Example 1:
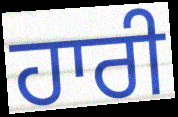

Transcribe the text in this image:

ਹਾਰੀ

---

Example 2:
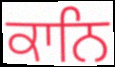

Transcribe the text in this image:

ਕਾਨਿ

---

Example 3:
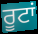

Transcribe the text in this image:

ਰੂਟਾਂ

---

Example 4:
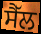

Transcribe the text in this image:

ਸੈੱਲ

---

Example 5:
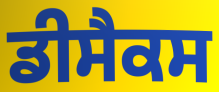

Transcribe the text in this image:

ਡੀਸੈਕਸ